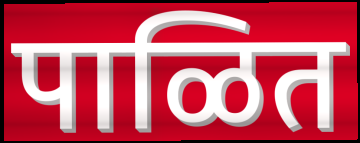
पाळित